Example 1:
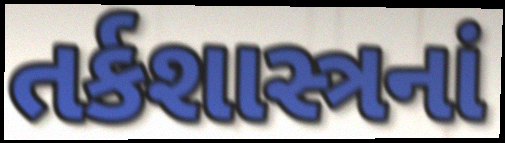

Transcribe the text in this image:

તર્કશાસ્ત્રનાં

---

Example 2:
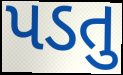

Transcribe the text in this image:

પડતુ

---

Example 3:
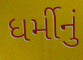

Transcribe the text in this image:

ધર્મીનું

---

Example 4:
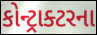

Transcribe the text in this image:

કોન્ટ્રાક્ટરના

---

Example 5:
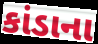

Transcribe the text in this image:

કાંડાના